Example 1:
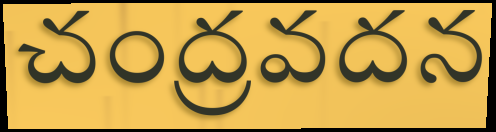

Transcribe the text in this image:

చంద్రవదన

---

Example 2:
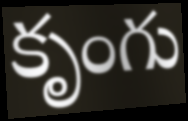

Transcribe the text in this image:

కృంగు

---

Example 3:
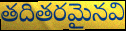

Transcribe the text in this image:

తదితరమైనవి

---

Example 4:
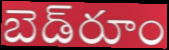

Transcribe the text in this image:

బెడ్‌రూం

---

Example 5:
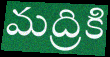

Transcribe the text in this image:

మద్రికి